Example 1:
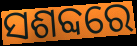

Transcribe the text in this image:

ସଶବ୍ଦରେ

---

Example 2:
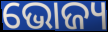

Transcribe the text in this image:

ଭୋଜ୍ୟ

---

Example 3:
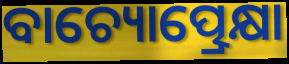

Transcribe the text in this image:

ବାଚ୍ୟୋତ୍ପ୍ରେକ୍ଷା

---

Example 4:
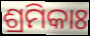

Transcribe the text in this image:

ଶ୍ରମିକାଃ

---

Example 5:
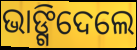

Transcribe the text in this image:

ଭାଙ୍ଗିଦେଲେ